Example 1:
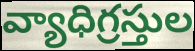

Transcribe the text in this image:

వ్యాధిగ్రస్తుల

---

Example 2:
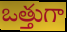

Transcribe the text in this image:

ఒత్తుగా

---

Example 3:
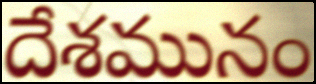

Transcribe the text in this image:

దేశమునం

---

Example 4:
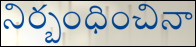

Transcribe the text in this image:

నిర్బంధించినా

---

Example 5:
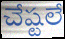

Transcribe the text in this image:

చేష్టలే